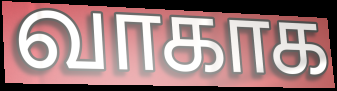
வாகாக